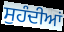
ਸੁਹੰਦੀਆਂ